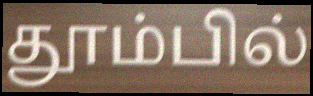
தூம்பில்